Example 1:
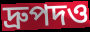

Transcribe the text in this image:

দ্রুপদও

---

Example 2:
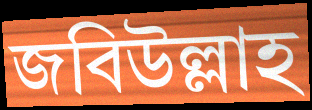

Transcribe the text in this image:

জবিউল্লাহ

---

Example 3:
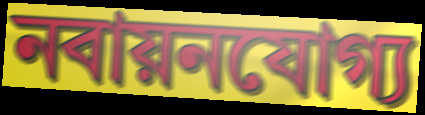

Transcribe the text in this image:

নবায়নযোগ্য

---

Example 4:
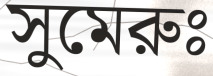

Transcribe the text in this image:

সুমেরুঃ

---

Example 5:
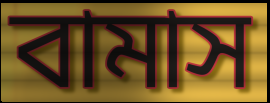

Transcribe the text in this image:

বামাস